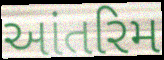
આંતરિમ